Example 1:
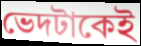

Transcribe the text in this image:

ভেদটাকেই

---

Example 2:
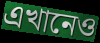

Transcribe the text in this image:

এখানেও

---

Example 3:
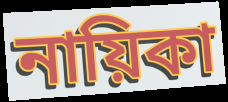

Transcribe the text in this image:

নায়িকা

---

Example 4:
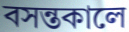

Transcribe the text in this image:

বসন্তকালে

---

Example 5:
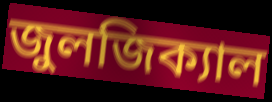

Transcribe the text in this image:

জুলজিক্যাল